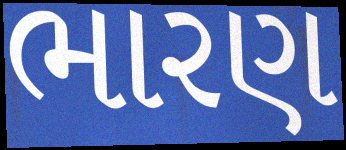
ભારણ